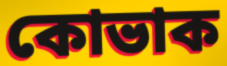
কোভাক